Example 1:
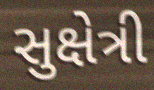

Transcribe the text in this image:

સુક્ષેત્રી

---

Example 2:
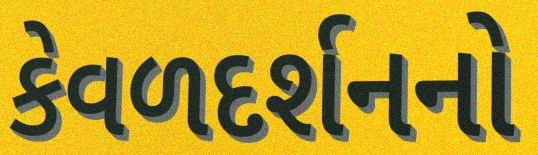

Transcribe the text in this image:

કેવળદર્શનનો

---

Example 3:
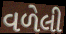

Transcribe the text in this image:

વળેલી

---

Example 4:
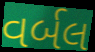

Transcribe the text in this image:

વર્બલ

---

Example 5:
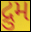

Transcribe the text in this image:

દ્રુમ